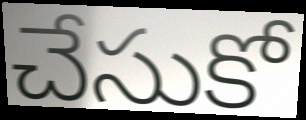
చేసుకో